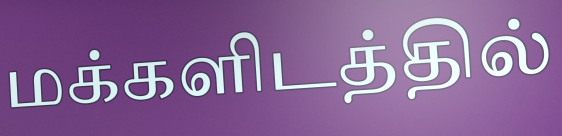
மக்களிடத்தில்